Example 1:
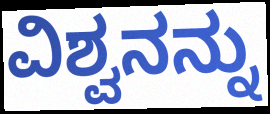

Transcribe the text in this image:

ವಿಶ್ವನನ್ನು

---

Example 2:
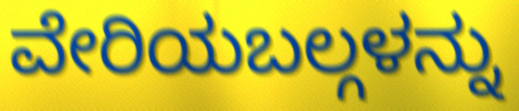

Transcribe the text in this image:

ವೇರಿಯಬಲ್ಗಳನ್ನು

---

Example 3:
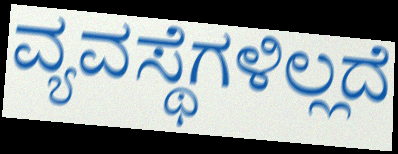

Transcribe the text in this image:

ವ್ಯವಸ್ಥೆಗಳಿಲ್ಲದೆ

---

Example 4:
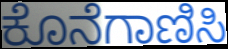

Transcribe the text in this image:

ಕೊನೆಗಾಣಿಸಿ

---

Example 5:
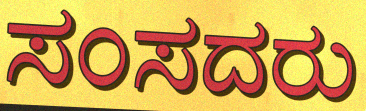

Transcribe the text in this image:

ಸಂಸದರು